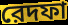
রেদফা